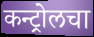
कन्ट्रोलचा